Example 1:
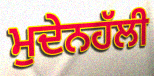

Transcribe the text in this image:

ਮੁਦੇਨਹੱਲੀ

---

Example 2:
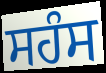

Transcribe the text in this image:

ਸਹੰਸ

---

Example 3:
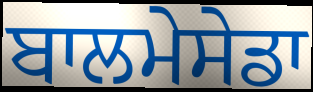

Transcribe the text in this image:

ਬਾਲਮੇਸੇਡਾ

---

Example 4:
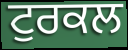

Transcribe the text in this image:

ਟੁਰਕਲ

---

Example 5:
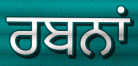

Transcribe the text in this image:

ਰਬਨਾਂ